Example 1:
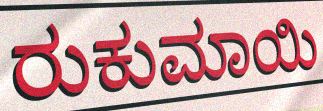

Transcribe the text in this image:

ರುಕುಮಾಯಿ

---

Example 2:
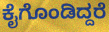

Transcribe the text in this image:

ಕೈಗೊಂಡಿದ್ದರೆ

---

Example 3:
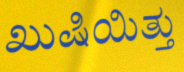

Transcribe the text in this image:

ಖುಷಿಯಿತ್ತು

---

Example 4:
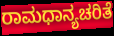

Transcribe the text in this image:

ರಾಮಧಾನ್ಯಚರಿತೆ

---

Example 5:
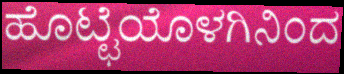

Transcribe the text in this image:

ಹೊಟ್ಟೆಯೊಳಗಿನಿಂದ